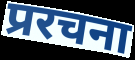
प्ररचना